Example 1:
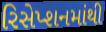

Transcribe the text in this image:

રિસેપ્શનમાંથી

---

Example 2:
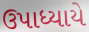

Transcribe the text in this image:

ઉપાધ્યાયે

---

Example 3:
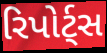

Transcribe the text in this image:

રિપોર્ટ્સ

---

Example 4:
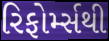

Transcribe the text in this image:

રિફોર્મ્સથી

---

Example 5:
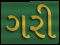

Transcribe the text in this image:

ગરી